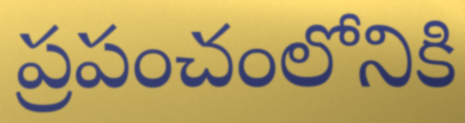
ప్రపంచంలోనికి